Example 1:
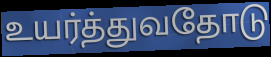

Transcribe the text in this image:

உயர்த்துவதோடு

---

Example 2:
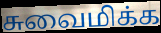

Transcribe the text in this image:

சுவைமிக்க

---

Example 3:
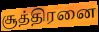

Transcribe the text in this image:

சூத்திரனை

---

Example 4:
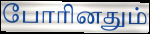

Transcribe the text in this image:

போரினதும்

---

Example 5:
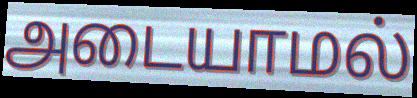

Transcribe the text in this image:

அடையாமல்